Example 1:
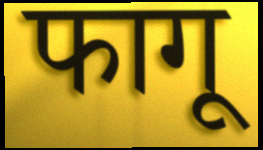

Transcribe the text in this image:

फागू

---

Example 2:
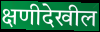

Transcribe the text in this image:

क्षणीदेखील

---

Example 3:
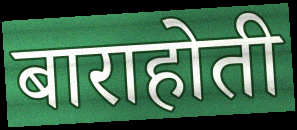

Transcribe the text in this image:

बाराहोती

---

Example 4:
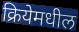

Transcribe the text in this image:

क्रियेमधील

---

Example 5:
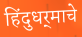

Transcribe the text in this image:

हिंदुधर्माचे